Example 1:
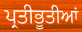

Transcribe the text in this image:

ਪ੍ਰਤੀਭੂਤੀਆਂ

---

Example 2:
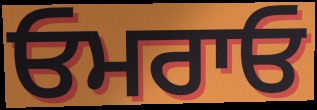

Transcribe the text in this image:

ਓਮਰਾਓ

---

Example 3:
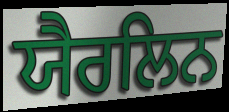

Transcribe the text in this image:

ਯੈਰਲਿਨ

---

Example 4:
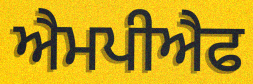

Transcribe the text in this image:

ਐਮਪੀਐਫ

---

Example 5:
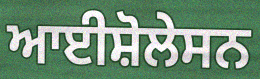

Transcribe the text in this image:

ਆਈਸ਼ੋਲੇਸਨ